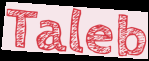
Taleb